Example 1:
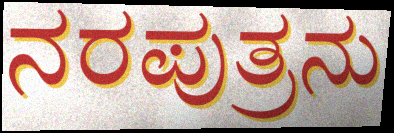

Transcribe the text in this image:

ನರಪುತ್ರನು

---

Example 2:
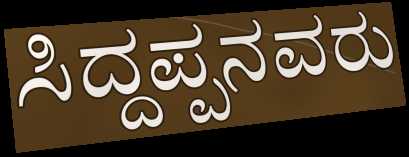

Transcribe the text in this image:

ಸಿದ್ದಪ್ಪನವರು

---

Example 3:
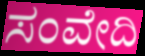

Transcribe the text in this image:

ಸಂವೇದಿ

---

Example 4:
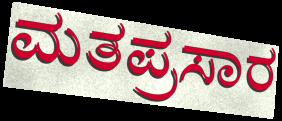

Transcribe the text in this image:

ಮತಪ್ರಸಾರ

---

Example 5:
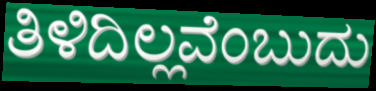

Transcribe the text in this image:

ತಿಳಿದಿಲ್ಲವೆಂಬುದು